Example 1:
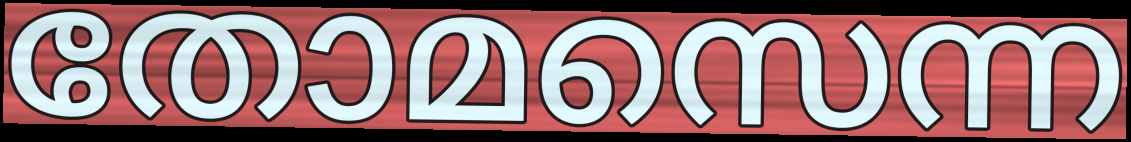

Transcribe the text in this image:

തോമസെന്ന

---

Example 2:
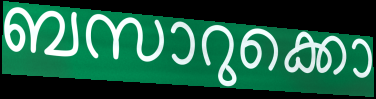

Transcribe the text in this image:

ബസാറുക്കൊ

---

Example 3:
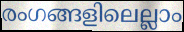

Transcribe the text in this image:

രംഗങ്ങളിലെല്ലാം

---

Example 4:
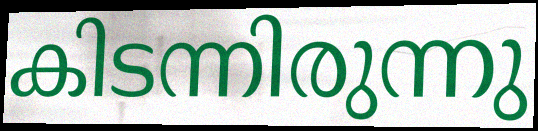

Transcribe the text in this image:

കിടന്നിരുന്നു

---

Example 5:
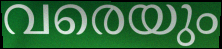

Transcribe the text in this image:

വരെയും